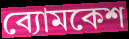
ব্যোমকেশ